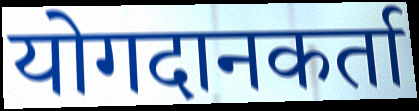
योगदानकर्ता